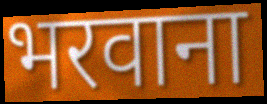
भरवाना